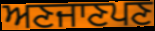
ਅਣਜਾਣਪਣ